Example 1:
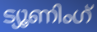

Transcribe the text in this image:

ട്യൂണിംഗ്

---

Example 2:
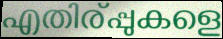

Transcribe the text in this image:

എതിര്പ്പുകളെ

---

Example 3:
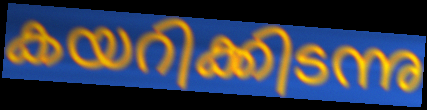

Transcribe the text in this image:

കയറിക്കിടന്നു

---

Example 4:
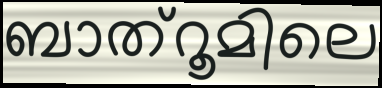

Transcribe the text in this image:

ബാത്റൂമിലെ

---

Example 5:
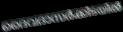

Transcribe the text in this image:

ദൈവദാസർക്കിടയിൽ